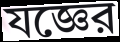
যজ্ঞের